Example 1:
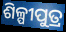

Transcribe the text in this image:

ଶିଳ୍ପୀପୁତ୍ର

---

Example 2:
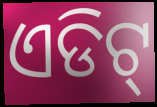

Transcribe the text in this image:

ଏଡିଟ୍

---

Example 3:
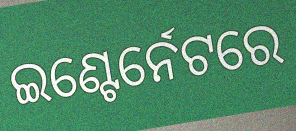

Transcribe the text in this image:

ଇଣ୍ଟେର୍ନେଟରେ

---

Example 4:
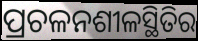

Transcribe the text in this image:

ପ୍ରଚଳନଶୀଳସ୍ଥିତିର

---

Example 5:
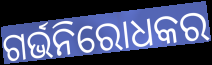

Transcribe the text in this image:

ଗର୍ଭନିରୋଧକର